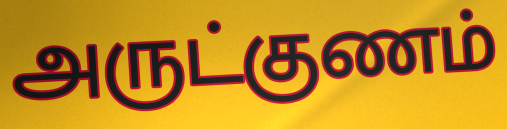
அருட்குணம்